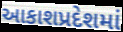
આકાશપ્રદેશમાં